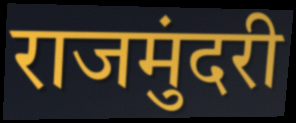
राजमुंदरी